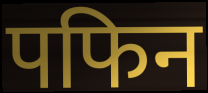
पफिन